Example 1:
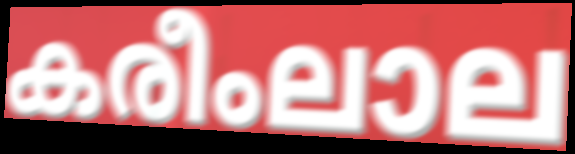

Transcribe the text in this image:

കരീംലാല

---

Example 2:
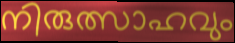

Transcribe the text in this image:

നിരുത്സാഹവും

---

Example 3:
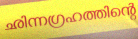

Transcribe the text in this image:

ഛിന്നഗ്രഹത്തിന്റെ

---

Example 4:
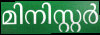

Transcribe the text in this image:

മിനിസ്റ്റർ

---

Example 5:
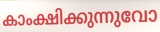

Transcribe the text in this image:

കാംക്ഷിക്കുന്നുവോ